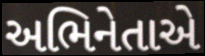
અભિનેતાએ